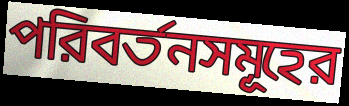
পরিবর্তনসমূহের